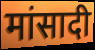
मांसादी